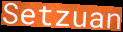
Setzuan